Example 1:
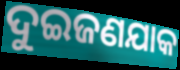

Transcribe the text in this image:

ଦୁଇଜଣଯାକ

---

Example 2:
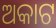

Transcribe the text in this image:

ଅକାଟ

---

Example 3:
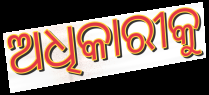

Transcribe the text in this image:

ଅଧିକାରୀକୁ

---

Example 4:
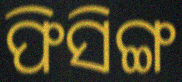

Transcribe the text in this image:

ଫିସିଙ୍ଗ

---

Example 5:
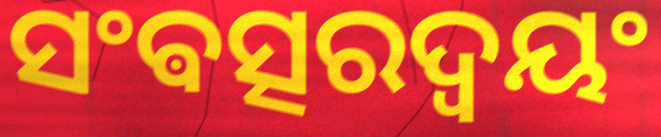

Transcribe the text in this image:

ସଂଵତ୍ସରଦ୍ଵୟଂ